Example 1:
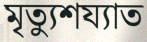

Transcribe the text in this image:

মৃত্যুশয্যাত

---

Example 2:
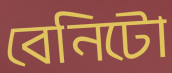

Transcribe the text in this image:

বেনিটো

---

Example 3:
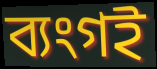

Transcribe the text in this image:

ব্যংগই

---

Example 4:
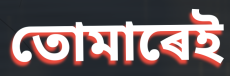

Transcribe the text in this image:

তোমাৰেই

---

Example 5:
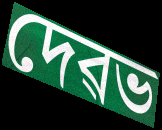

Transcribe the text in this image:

দেৱভ